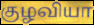
குழவியா